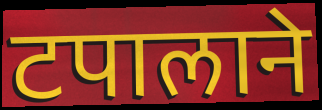
टपालाने